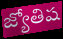
జ్యోతిష